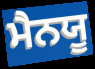
ਮੈਨਯੂ